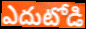
ఎదుటోడి